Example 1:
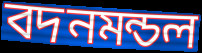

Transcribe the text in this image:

বদনমন্ডল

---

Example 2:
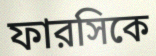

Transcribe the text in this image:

ফারসিকে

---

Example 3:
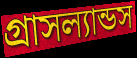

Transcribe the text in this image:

গ্রাসল্যান্ডস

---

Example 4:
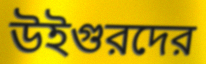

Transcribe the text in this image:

উইগুরদের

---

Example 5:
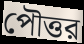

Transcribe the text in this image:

পৌত্তর